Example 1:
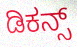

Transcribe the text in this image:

ಡಿಕನ್ಸ್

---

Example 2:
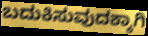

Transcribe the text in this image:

ಬದುಕಿಸುವುದಕ್ಕಾಗಿ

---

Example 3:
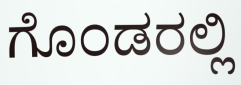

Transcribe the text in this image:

ಗೊಂಡರಲ್ಲಿ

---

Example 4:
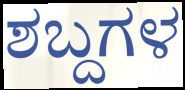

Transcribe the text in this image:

ಶಬ್ದಗಳ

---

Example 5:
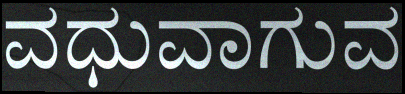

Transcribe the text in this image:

ವಧುವಾಗುವ